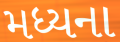
મધ્યના